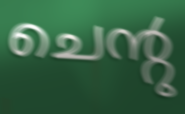
ചെന്റു